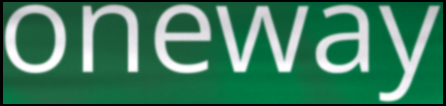
oneway